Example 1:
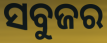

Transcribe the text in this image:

ସବୁଜର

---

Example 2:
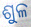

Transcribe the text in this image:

ଶୁଳ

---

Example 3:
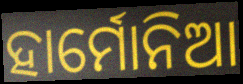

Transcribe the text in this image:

ହାର୍ମୋନିଆ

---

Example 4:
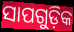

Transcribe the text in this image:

ସାପଗୁଡ଼ିକ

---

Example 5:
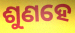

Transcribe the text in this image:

ଶୁଣହେ